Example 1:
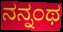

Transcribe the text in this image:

ನನ್ನಂಥ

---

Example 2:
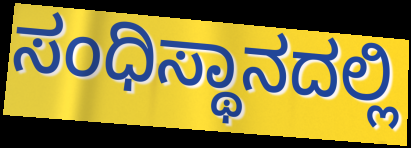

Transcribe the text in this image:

ಸಂಧಿಸ್ಥಾನದಲ್ಲಿ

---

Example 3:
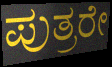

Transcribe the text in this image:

ಪುತ್ರರೇ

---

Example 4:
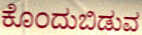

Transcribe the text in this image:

ಕೊಂದುಬಿಡುವ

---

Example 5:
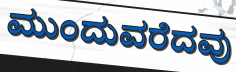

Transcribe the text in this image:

ಮುಂದುವರೆದವು